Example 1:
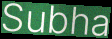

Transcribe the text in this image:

Subha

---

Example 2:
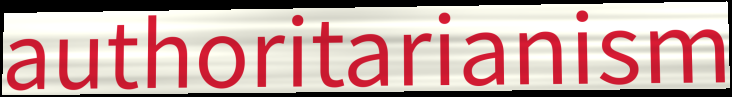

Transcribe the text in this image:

authoritarianism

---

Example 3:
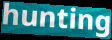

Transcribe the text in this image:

hunting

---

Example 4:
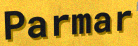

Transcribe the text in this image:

Parmar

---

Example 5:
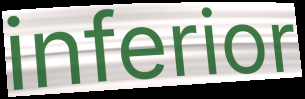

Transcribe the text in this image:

inferior